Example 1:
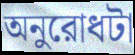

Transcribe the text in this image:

অনুরোধটা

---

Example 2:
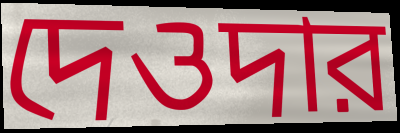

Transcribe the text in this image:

দেওদার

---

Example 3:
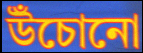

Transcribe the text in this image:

উঁচোনো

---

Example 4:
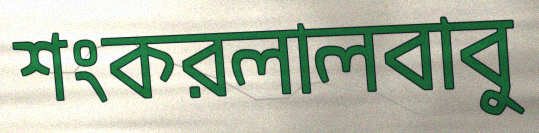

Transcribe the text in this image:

শংকরলালবাবু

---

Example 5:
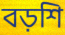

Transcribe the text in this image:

বড়শি